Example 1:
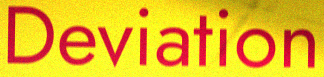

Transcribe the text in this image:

Deviation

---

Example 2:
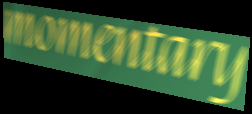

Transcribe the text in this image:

momentary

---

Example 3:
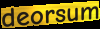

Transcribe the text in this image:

deorsum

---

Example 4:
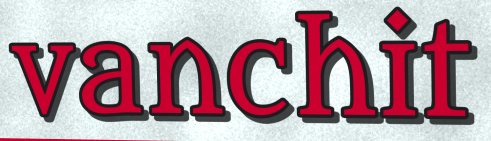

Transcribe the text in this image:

vanchit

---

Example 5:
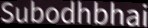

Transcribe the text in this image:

Subodhbhai